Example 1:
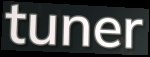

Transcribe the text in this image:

tuner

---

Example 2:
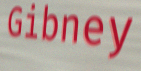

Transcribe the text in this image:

Gibney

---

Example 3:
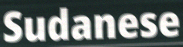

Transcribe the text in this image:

Sudanese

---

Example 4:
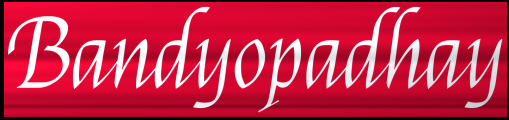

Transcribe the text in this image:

Bandyopadhay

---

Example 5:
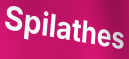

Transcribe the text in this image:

Spilathes